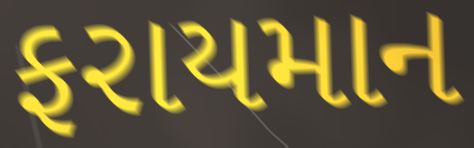
ફરાયમાન